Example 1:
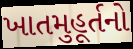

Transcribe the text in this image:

ખાતમુહૂર્તનો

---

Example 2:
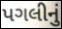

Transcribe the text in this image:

પગલીનું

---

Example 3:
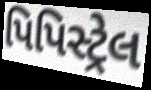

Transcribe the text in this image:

પિપિસ્ટ્રેલ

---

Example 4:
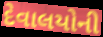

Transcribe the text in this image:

દેવાલયોની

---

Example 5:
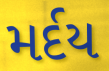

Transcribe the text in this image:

મર્દય